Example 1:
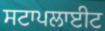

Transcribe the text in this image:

ਸਟਾਪਲਾਈਟ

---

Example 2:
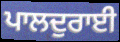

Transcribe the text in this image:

ਪਾਲਦੁਰਾਈ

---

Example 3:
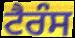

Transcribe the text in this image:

ਟੈਰੰਸ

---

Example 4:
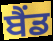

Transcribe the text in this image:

ਬੈਂਡ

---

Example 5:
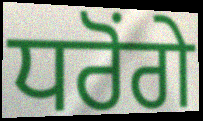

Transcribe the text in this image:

ਧਰੋਂਗੇ